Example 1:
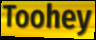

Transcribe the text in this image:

Toohey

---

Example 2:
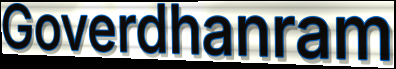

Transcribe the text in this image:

Goverdhanram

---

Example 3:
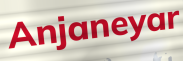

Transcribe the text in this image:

Anjaneyar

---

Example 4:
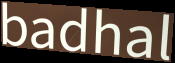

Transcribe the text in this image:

badhal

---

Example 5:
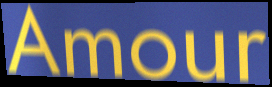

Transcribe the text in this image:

Amour